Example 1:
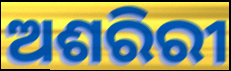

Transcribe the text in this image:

ଅଶରିରୀ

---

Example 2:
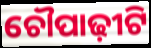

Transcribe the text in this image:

ଚୌପାଢ଼ୀଟି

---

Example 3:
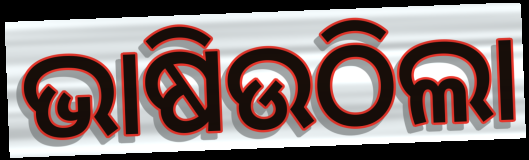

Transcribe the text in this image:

ଭାଷିଉଠିଲା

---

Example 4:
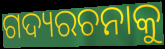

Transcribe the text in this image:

ଗଦ୍ୟରଚନାକୁ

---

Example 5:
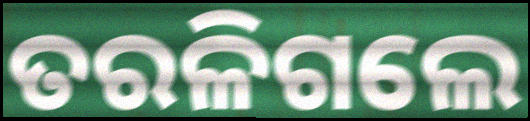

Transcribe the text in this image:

ତରଳିଗଲେ